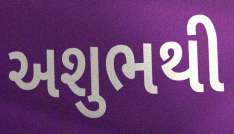
અશુભથી